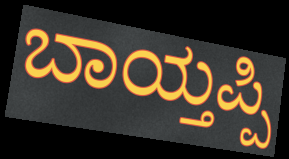
ಬಾಯ್ತಪ್ಪಿ